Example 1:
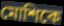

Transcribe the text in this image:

মোশিকে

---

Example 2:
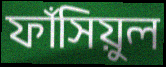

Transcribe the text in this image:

ফাঁসিয়ুল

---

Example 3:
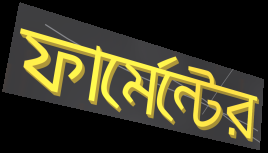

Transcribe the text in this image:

ফার্মেন্টের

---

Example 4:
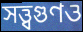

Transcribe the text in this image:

সত্ত্বগুণও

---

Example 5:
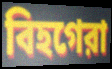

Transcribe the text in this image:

বিহগেরা